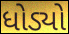
ધોડ્યો